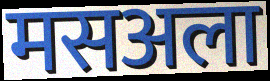
मसअला